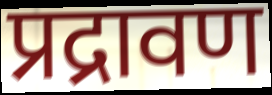
प्रद्रावण